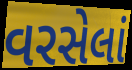
વરસેલાં